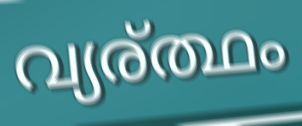
വ്യര്ത്ഥം